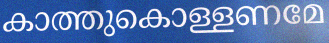
കാത്തുകൊള്ളണമേ